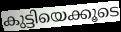
കുട്ടിയെക്കൂടെ